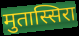
मुतास्सिरा